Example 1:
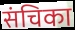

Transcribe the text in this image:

संचिका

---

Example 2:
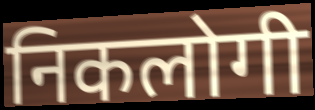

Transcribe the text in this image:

निकलोगी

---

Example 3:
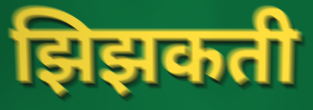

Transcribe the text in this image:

झिझकती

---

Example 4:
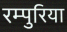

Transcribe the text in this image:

रम्पुरिया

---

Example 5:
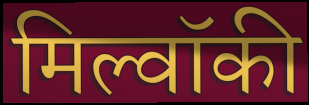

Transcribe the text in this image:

मिल्वॉकी